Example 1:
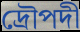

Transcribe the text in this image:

দ্রৌপদী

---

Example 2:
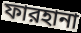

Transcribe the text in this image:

ফারহানা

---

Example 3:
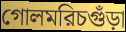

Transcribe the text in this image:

গোলমরিচগুঁড়া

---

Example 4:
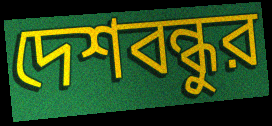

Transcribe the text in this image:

দেশবন্ধুর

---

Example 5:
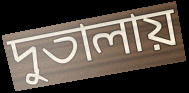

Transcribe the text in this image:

দুতালায়